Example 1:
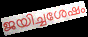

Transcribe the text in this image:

ജയിച്ചശേഷം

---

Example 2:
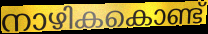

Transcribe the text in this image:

നാഴികകൊണ്ട്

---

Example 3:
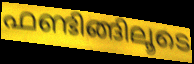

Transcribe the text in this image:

ഫണ്ടിങ്ങിലൂടെ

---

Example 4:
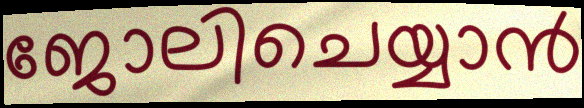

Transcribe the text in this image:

ജോലിചെയ്യാൻ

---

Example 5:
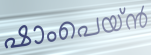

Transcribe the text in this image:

ഷാംപെയ്ൻ